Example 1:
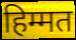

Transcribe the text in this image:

हिम्मत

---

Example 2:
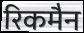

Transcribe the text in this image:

रिकमैन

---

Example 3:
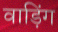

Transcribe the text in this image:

वाड़िंग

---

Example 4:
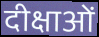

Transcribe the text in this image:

दीक्षाओं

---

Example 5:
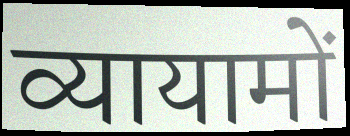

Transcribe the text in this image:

व्यायामों